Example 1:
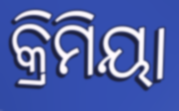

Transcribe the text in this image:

କ୍ରିମିୟା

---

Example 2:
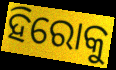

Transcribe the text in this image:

ହିରୋକୁ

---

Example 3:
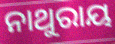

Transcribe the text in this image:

ନାଥୁରାୟ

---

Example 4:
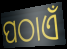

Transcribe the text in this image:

ପଠାଏଁ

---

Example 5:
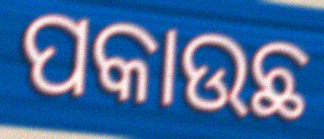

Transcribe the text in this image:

ପକାଉଛ